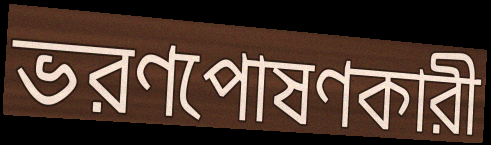
ভরণপোষণকারী